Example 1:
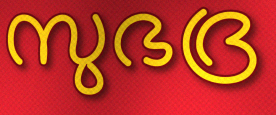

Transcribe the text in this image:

സുഭദ്ര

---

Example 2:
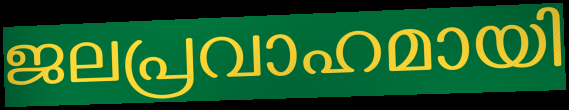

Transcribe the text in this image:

ജലപ്രവാഹമായി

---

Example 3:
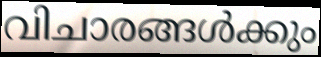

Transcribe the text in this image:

വിചാരങ്ങൾക്കും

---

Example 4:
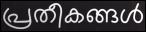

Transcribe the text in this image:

പ്രതീകങ്ങൾ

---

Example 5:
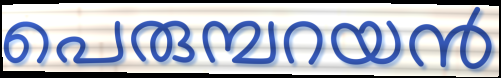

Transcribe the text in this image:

പെരുമ്പറയൻ